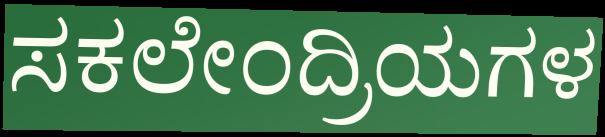
ಸಕಲೇಂದ್ರಿಯಗಳ